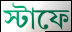
স্টাফে